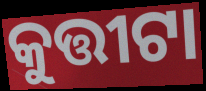
କୁତ୍ତୀଟା